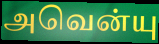
அவென்யு